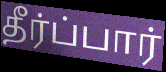
தீர்ப்பார்